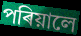
পৰিয়ালে